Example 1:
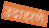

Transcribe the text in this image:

उदाहरणेः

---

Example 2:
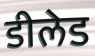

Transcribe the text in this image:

डीलेड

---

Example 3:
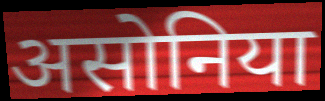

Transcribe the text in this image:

असोनिया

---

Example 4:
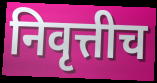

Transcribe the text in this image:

निवृत्तीच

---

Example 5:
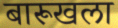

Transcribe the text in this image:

बारूखला